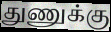
துணுக்கு